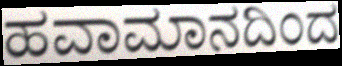
ಹವಾಮಾನದಿಂದ